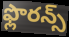
ఫ్లొరన్స్